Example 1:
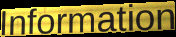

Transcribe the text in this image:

Information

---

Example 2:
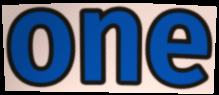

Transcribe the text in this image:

one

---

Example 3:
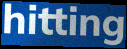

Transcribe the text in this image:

hitting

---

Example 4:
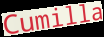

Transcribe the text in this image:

Cumilla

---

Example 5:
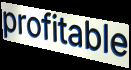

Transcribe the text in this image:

profitable